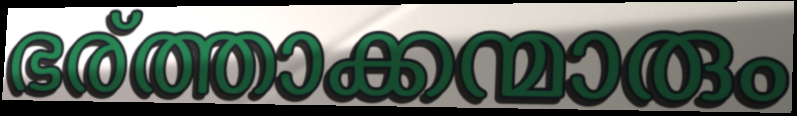
ഭര്ത്താക്കന്മാരും